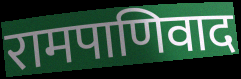
रामपाणिवाद